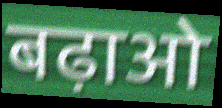
बढ़ाओ